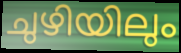
ചുഴിയിലും